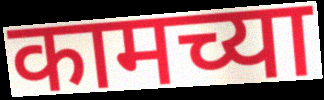
कामच्या